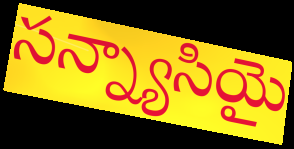
సన్న్యాసియై